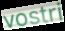
vostri